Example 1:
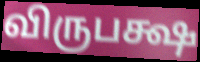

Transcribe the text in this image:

விருபக்ஷ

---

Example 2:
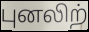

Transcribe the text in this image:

புனலிற்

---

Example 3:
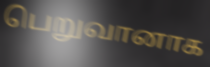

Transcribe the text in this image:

பெறுவானாக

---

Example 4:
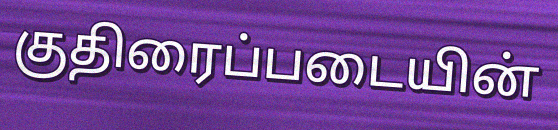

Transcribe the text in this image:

குதிரைப்படையின்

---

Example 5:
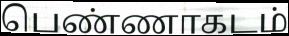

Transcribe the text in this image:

பெண்ணாகடம்